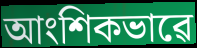
আংশিকভাৱে